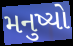
મનુષ્યો